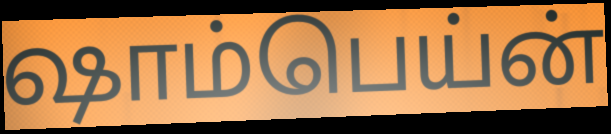
ஷாம்பெய்ன்